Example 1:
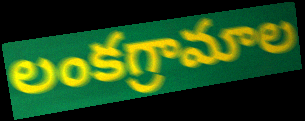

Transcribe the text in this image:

లంకగ్రామాల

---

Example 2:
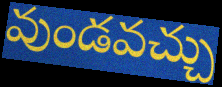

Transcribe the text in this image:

వుండవచ్చు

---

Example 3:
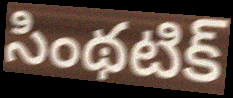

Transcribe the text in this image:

సింథటిక్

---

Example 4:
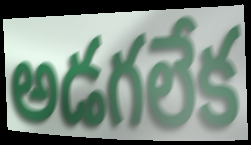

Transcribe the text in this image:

అడగలేక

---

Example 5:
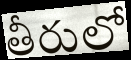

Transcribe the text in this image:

తీరులో